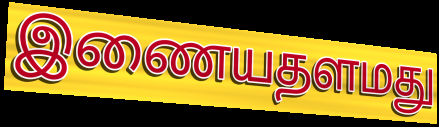
இணையதளமது